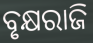
ବୃକ୍ଷରାଜି